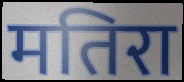
मतिरा